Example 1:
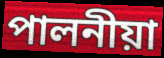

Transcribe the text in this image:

পালনীয়া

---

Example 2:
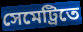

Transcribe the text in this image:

সেমেট্রিতে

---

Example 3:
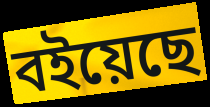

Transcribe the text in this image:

বইয়েছে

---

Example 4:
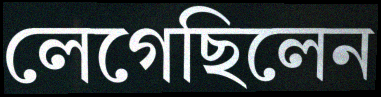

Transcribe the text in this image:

লেগেছিলেন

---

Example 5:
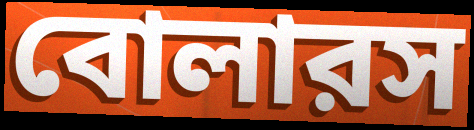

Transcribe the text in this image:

বোলারস